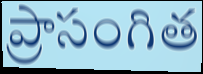
ప్రాసంగిత